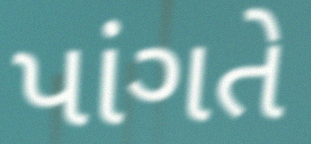
પાંગતે